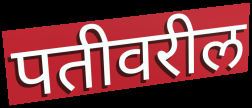
पतीवरील